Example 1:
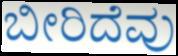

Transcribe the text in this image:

ಬೀರಿದೆವು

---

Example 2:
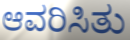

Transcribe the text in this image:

ಆವರಿಸಿತು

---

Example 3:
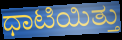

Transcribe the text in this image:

ಧಾಟಿಯಿತ್ತು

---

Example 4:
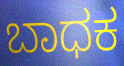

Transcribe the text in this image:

ಬಾಧಕ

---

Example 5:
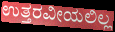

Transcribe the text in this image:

ಉತ್ತರವೀಯಲಿಲ್ಲ